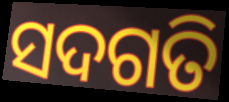
ସଦଗତି